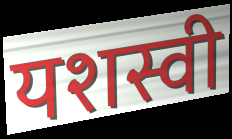
यशस्‍वी